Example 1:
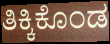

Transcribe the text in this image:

ತಿಕ್ಕಿಕೊಂಡ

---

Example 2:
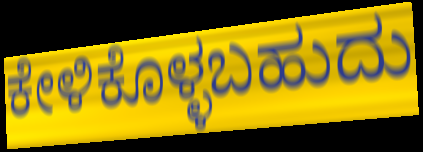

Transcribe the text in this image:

ಕೇಳಿಕೊಳ್ಳಬಹುದು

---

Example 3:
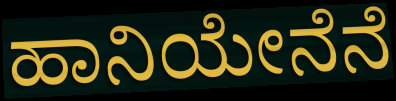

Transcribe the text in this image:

ಹಾನಿಯೇನೆನೆ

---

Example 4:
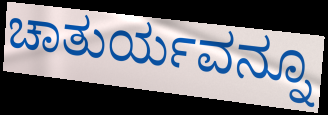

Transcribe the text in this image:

ಚಾತುರ್ಯವನ್ನೂ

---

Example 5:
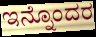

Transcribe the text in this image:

ಇನ್ನೊಂದರ